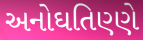
અનોઘતિણ્ણે